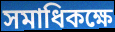
সমাধিকক্ষে